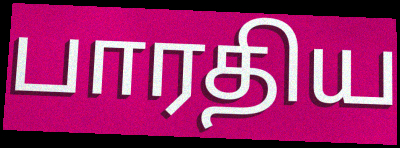
பாரதிய